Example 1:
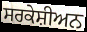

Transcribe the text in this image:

ਸਰਕੇਸ਼ੀਅਨ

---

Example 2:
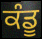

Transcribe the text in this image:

ਕੰਡੂ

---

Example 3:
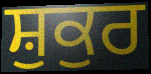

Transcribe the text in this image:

ਸ਼ੁਕੁਰ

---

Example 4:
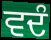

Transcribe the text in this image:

ਵਦੰ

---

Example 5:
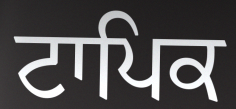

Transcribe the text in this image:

ਟਾਪਿਕ